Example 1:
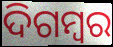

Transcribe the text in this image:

ଦିଗମ୍ୱର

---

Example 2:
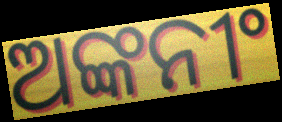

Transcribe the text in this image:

ଅଙ୍କନୀଂ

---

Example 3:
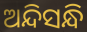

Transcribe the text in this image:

ଅନ୍ଦିସନ୍ଧି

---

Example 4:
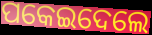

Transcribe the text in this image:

ପକେଇଦେଲେ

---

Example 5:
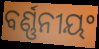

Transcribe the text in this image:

ବର୍ଣ୍ଣନୀୟଂ